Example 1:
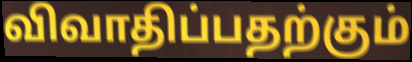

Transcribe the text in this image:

விவாதிப்பதற்கும்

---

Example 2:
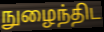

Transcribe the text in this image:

நுழைந்திட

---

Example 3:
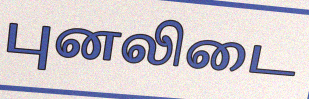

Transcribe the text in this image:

புனலிடை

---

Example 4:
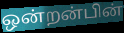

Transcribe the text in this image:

ஒன்றன்பின்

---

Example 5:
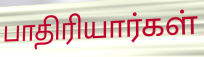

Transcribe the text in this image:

பாதிரியார்கள்